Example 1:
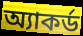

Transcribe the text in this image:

অ্যাকর্ড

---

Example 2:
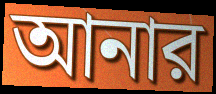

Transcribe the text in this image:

আনার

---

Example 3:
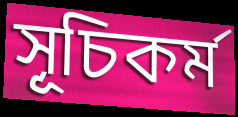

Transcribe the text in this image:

সূচিকর্ম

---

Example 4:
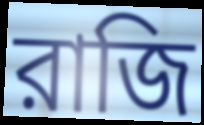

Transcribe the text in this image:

রাজি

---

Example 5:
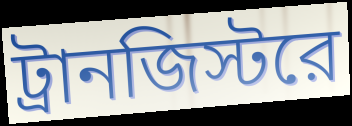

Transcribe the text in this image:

ট্রানজিস্টরে